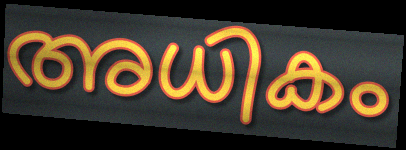
അധികം